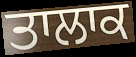
ਤਾਲਾਕ